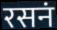
रसनं